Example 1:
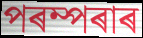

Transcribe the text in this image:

পৰম্পৰাৰ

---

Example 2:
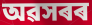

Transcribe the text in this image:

অৱসৰৰ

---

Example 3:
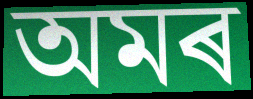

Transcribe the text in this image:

অমৰ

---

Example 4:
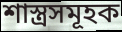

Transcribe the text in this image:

শাস্ত্ৰসমূহক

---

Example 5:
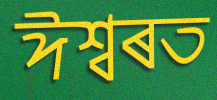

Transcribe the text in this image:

ঈশ্বৰত